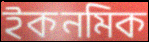
ইকনমিক